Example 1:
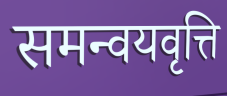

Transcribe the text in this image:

समन्वयवृत्ति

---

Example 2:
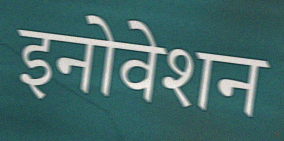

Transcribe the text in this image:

इनोवेशन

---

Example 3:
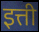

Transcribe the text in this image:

इत्ती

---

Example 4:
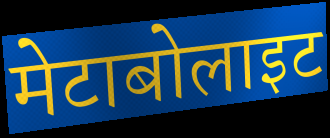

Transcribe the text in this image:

मेटाबोलाइट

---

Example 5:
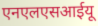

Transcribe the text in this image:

एनएलएसआईयू